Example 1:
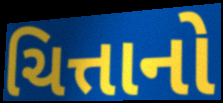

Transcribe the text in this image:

ચિત્તાનો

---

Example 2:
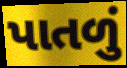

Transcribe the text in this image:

પાતળું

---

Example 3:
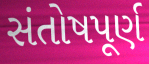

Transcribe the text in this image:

સંતોષપૂર્ણ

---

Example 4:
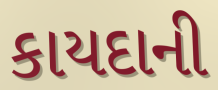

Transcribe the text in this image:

કાયદાની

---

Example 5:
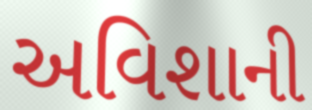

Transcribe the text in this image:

અવિશાની